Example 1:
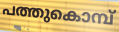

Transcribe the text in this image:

പത്തുകൊമ്പ്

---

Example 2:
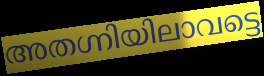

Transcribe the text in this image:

അതഗ്നിയിലാവട്ടെ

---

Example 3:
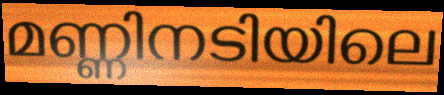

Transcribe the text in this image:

മണ്ണിനടിയിലെ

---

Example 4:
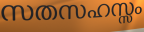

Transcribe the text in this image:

സതസഹസ്സം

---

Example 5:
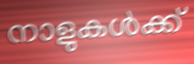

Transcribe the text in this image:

നാളുകൾക്ക്